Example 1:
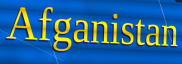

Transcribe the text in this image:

Afganistan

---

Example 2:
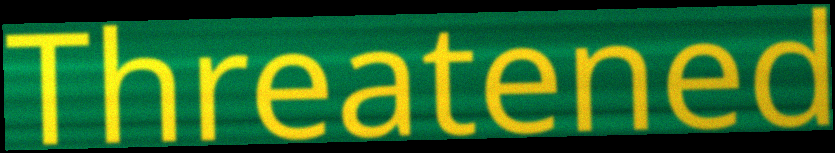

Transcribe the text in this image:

Threatened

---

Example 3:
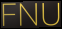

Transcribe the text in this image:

FNU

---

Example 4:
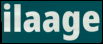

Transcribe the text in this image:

ilaage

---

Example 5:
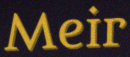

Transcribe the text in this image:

Meir